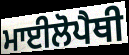
ਮਾਈਲੋਪੈਥੀ